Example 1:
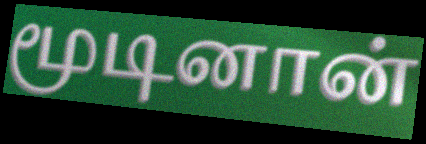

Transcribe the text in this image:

மூடினான்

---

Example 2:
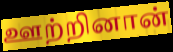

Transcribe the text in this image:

ஊற்றினான்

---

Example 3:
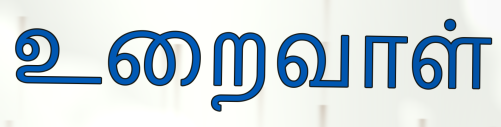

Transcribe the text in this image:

உறைவாள்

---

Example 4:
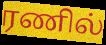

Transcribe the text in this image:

ரணில்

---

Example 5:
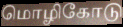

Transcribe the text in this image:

மொழிகோடு